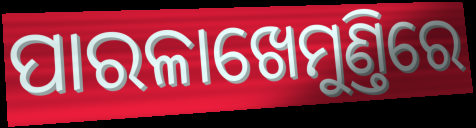
ପାରଳାଖେମୁଣ୍ତିରେ